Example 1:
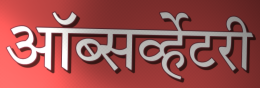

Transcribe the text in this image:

ऑब्सर्व्हेटरी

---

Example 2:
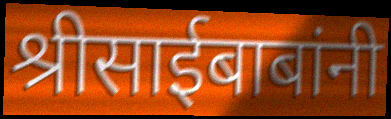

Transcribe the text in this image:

श्रीसाईबाबांनी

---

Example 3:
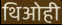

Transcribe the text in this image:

थिओही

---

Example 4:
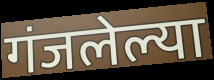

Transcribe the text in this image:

गंजलेल्या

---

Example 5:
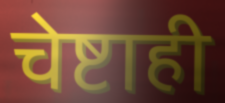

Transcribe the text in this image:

चेष्टाही